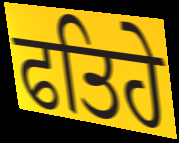
ਫਤਿਹੇ